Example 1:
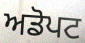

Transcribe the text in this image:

ਅਡੋਪਟ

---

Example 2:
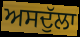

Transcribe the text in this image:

ਅਸਦੁੱਲਾ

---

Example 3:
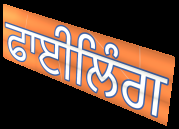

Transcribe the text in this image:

ਫਾਈਲਿੰਗ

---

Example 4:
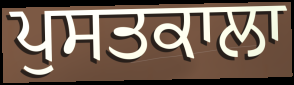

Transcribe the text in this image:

ਪੁਸਤਕਾਲਾ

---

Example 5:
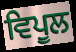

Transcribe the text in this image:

ਵਿਪੂਲ